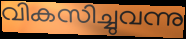
വികസിച്ചുവന്നു